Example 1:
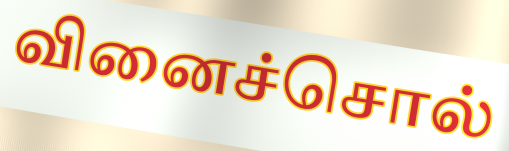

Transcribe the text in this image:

வினைச்சொல்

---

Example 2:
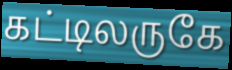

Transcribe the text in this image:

கட்டிலருகே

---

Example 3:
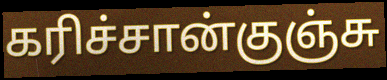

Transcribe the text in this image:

கரிச்சான்குஞ்சு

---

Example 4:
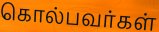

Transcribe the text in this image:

கொல்பவர்கள்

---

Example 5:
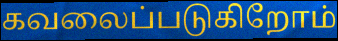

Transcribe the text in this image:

கவலைப்படுகிறோம்